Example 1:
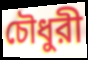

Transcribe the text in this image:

চৌধুরী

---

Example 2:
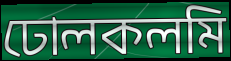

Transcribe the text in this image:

ঢোলকলমি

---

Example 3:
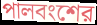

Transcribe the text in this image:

পালবংশের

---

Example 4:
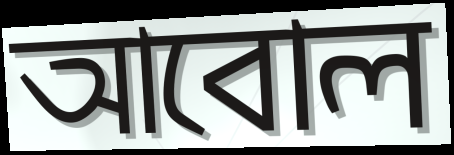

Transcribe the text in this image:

আবোল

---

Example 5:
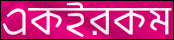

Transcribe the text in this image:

একইরকম